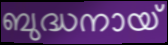
ബുദ്ധനായ്